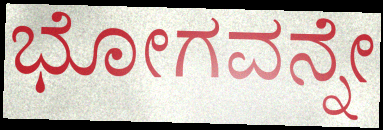
ಭೋಗವನ್ನೇ